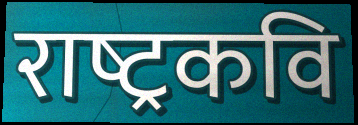
राष्ट्रकवि